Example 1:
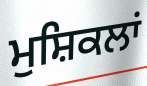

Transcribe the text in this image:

ਮੁਸ਼ਿਕਲਾਂ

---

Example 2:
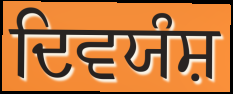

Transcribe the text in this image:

ਦਿਵਯੰਸ਼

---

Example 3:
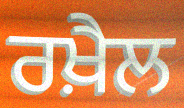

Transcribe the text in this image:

ਰਖ਼ੈਲ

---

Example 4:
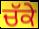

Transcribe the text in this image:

ਚੱਕੇ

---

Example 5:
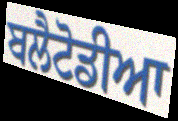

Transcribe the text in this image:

ਬਲੈਟੋਡੀਆ